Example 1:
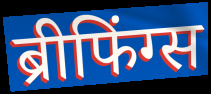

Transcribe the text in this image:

ब्रीफिंग्स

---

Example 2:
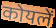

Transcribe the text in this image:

कोयलें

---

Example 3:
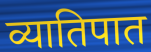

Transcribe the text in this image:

व्यातिपात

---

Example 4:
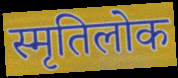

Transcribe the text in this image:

स्मृतिलोक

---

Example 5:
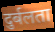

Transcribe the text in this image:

दुर्बलता